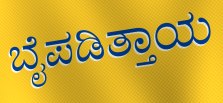
ಬೈಪಡಿತ್ತಾಯ